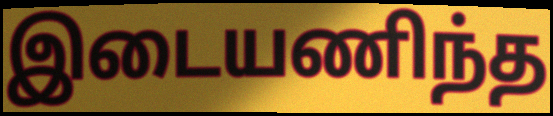
இடையணிந்த